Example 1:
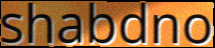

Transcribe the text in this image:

shabdno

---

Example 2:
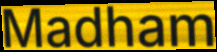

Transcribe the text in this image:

Madham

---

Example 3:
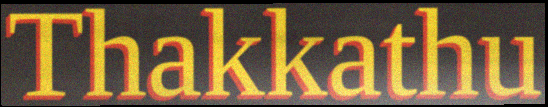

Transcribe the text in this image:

Thakkathu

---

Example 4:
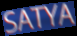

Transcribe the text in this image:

SATYA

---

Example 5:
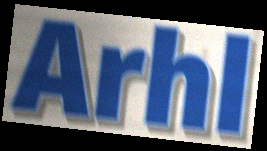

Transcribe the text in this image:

Arhl